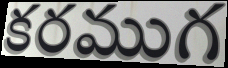
కరముగ